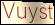
Vuyst